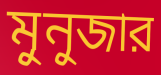
মুনুজার